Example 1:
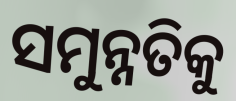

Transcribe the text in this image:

ସମୁନ୍ନତିକୁ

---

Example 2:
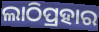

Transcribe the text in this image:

ଲାଠିପ୍ରହାର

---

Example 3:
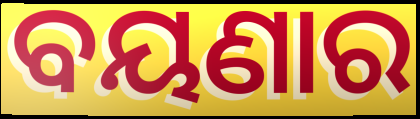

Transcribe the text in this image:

ବୟଣାର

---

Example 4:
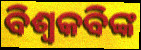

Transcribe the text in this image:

ବିଶ୍ୱକବିଙ୍କ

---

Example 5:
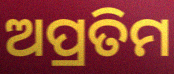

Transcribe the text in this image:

ଅପ୍ରତିମ